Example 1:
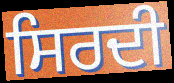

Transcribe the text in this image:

ਸਿਰਦੀ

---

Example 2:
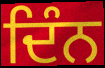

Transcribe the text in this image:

ਦਿੰਨ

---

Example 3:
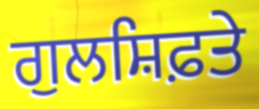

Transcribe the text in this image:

ਗੁਲਸ਼ਿਫ਼ਤੇ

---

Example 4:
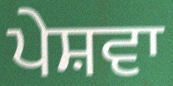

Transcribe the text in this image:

ਪੇਸ਼ਵਾ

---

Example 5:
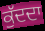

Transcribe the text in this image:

ਕੁੱਦਦਾ